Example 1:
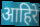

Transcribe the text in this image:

आहिरे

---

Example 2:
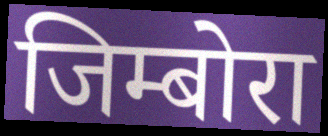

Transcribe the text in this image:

जिम्बोरा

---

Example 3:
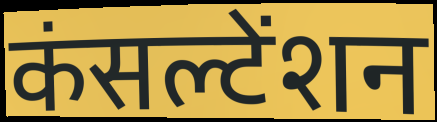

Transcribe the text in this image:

कंसल्टेंशन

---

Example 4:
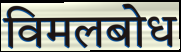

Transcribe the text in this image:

विमलबोध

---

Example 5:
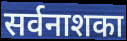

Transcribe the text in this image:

सर्वनाशका